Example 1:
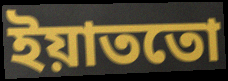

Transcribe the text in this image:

ইয়াততো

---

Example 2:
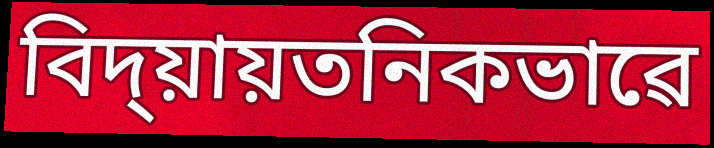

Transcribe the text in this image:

বিদ্য়ায়তনিকভাৱে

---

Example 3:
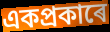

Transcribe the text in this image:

একপ্ৰকাৰে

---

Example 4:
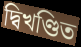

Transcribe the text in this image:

দ্বিখণ্ডিত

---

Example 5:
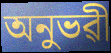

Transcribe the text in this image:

অনুভৱী